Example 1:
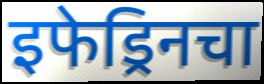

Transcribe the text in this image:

इफेड्रिनचा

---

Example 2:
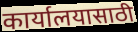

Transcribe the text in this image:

कार्यालयासाठी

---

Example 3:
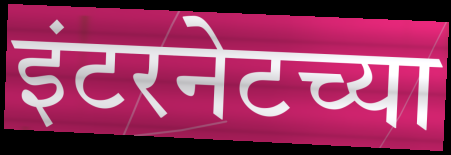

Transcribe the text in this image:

इंटरनेटच्या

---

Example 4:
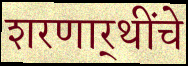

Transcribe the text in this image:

शरणार्थींचे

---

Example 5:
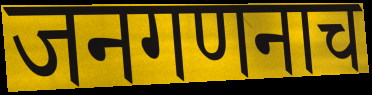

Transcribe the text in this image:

जनगणनाच